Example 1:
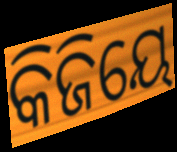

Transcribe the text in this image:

କିଜିୟେ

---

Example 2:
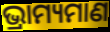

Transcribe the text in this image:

ଭ୍ରାମ୍ୟମାଣ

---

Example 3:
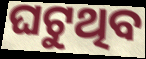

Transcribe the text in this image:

ଘଟୁଥିବ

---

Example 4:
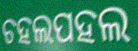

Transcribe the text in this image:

ଚହଲପହଲ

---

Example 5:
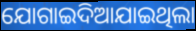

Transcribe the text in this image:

ଯୋଗାଇଦିଆଯାଇଥିଲା